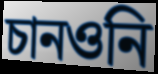
চানওনি